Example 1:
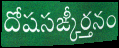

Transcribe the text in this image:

దోషసఙ్కీర్తనం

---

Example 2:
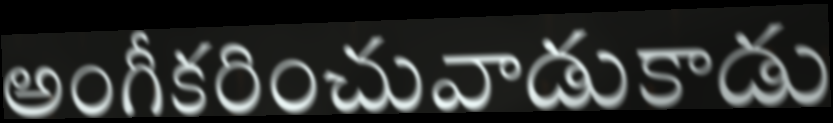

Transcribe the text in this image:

అంగీకరించువాడుకాడు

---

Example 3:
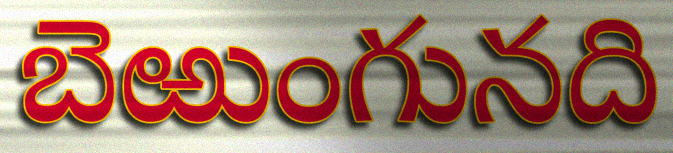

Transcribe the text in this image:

బెఱుంగునది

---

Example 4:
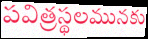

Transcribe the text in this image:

పవిత్రస్థలమునకు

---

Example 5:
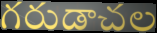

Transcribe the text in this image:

గరుడాచల